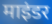
माइंडर